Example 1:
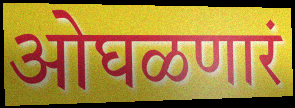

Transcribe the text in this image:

ओघळणारं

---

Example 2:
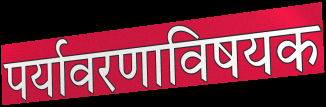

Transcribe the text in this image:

पर्यावरणाविषयक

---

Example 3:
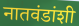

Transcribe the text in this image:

नातवंडांशी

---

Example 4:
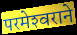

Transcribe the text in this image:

परमेश्वराने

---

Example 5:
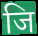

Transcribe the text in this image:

जि